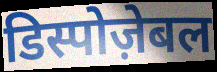
डिस्पोज़ेबल